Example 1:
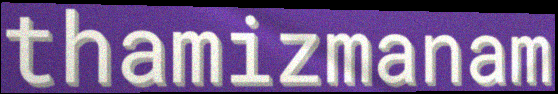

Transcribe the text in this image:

thamizmanam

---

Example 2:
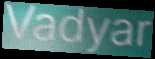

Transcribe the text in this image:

Vadyar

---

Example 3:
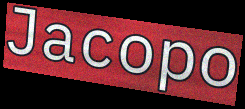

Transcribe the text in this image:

Jacopo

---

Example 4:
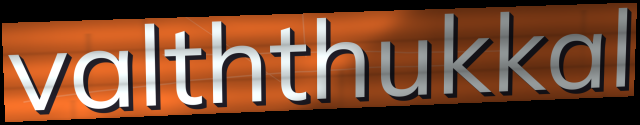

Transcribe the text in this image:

valththukkal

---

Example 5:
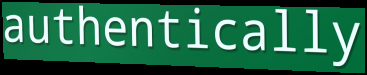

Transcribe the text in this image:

authentically